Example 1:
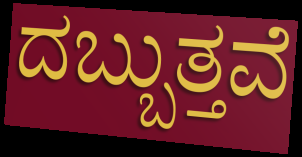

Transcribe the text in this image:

ದಬ್ಬುತ್ತವೆ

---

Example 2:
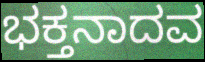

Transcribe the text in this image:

ಭಕ್ತನಾದವ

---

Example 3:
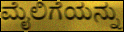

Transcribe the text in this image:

ಮೈಲಿಗೆಯನ್ನು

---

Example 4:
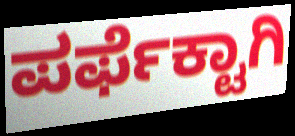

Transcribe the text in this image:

ಪರ್ಫೆಕ್ಟಾಗಿ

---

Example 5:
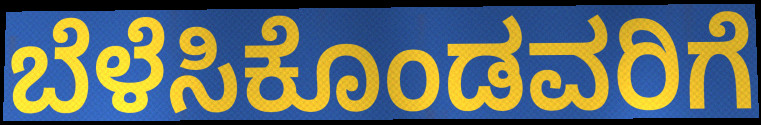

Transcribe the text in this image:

ಬೆಳೆಸಿಕೊಂಡವರಿಗೆ